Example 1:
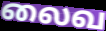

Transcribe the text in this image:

லைவ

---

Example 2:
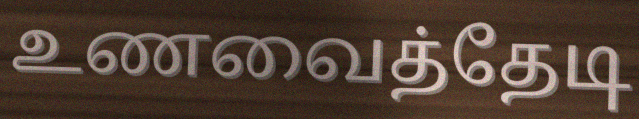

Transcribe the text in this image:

உணவைத்தேடி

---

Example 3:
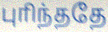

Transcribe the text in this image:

புரிந்ததே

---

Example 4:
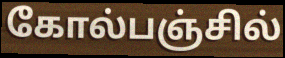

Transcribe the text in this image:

கோல்பஞ்சில்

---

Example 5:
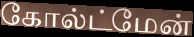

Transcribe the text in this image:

கோல்ட்மேன்